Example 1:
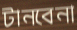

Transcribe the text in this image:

টানবেনা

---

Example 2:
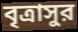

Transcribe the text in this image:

বৃত্রাসুর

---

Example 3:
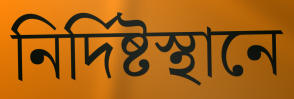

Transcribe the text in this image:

নির্দিষ্টস্থানে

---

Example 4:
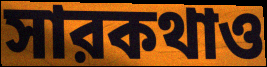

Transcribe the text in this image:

সারকথাও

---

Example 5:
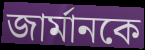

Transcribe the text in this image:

জার্মানকে